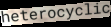
heterocyclic